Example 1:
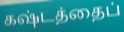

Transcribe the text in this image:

கஷ்டத்தைப்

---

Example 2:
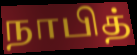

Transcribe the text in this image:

நாபித்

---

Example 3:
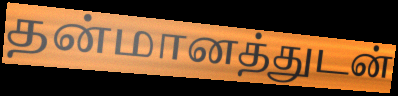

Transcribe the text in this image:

தன்மானத்துடன்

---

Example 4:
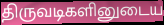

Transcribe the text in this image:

திருவடிகளினுடைய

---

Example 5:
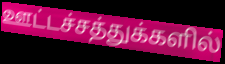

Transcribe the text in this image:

ஊட்டச்சத்துக்களில்